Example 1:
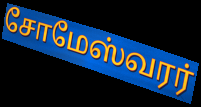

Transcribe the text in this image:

சோமேஸ்வரர்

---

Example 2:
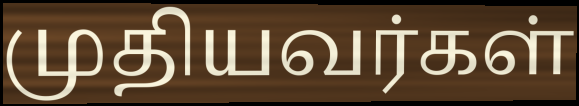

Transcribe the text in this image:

முதியவர்கள்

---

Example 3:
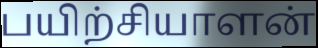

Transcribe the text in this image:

பயிற்சியாளன்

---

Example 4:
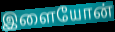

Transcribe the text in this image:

இளையோன்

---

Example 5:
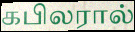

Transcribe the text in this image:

கபிலரால்